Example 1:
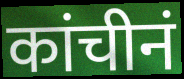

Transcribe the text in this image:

कांचीनं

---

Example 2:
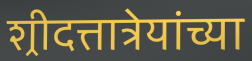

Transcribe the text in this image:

श्रीदत्तात्रेयांच्या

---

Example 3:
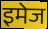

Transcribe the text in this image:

इमेज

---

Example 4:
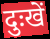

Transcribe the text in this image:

दुःखें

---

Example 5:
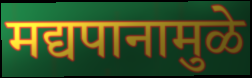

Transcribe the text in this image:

मद्यपानामुळे